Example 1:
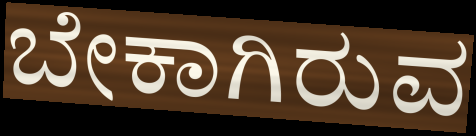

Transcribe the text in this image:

ಬೇಕಾಗಿರುವ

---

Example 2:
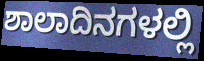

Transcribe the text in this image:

ಶಾಲಾದಿನಗಳಲ್ಲಿ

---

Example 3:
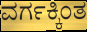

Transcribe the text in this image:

ವರ್ಗಕ್ಕಿಂತ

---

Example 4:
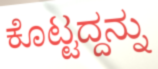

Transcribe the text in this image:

ಕೊಟ್ಟದ್ದನ್ನು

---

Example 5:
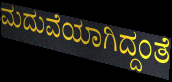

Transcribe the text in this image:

ಮದುವೆಯಾಗಿದ್ದಂತೆ